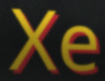
Xe